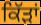
ਕਿੱੜਾਂ